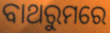
ବାଥରୁମରେ